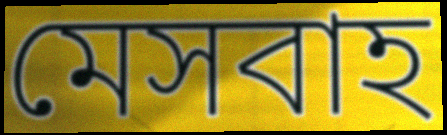
মেসবাহ